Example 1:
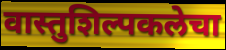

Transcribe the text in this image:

वास्तुशिल्पकलेचा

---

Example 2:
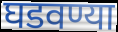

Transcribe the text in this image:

घडवण्या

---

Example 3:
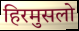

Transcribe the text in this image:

हिरमुसलो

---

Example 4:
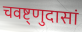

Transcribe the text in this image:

चवष्ट्णुदासां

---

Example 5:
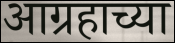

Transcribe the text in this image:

आग्रहाच्या